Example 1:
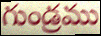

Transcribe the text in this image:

గుండ్రము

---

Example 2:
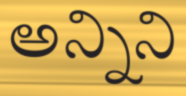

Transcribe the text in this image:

అన్నిని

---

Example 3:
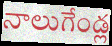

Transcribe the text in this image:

నాలుగేండ్ల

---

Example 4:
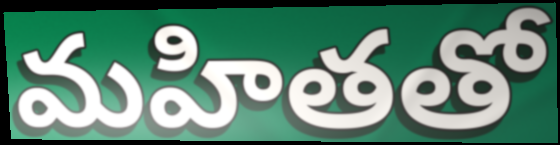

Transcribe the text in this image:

మహితతో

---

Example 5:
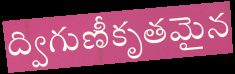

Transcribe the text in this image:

ద్విగుణీకృతమైన